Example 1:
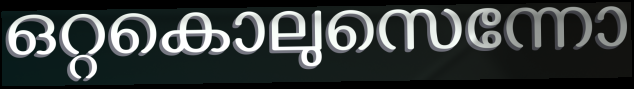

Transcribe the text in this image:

ഒറ്റകൊലുസെന്നോ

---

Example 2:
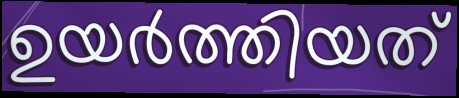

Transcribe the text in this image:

ഉയർത്തിയത്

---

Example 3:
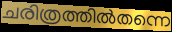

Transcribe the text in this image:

ചരിത്രത്തിൽതന്നെ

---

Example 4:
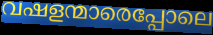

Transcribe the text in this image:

വഷളന്മാരെപ്പോലെ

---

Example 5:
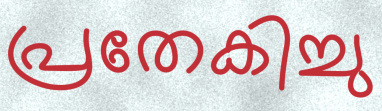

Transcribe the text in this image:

പ്രതേകിച്ചു